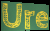
Ure